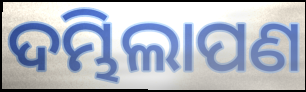
ଦମ୍ଭିଲାପଣ